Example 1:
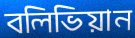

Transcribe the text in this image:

বলিভিয়ান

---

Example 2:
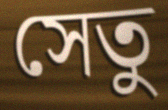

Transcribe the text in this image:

সেতু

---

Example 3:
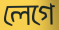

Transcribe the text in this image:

লেগে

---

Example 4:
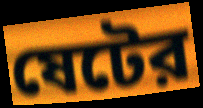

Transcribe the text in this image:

ষেটের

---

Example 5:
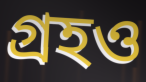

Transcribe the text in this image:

গ্রহও